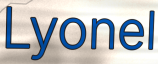
Lyonel